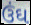
ઉંઘ